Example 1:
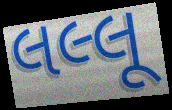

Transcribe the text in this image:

લલ્લૂ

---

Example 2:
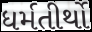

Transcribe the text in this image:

ધર્મતીર્થો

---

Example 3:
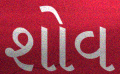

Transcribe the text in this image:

શોવ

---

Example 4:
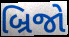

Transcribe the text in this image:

બ્રિજો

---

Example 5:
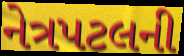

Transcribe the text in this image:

નેત્રપટલની